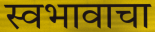
स्वभावाचा